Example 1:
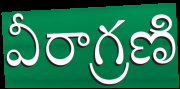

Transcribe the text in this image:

వీరాగ్రణి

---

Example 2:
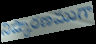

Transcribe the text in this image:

నిష్కారణముగా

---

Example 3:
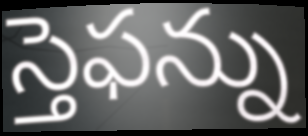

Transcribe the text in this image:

స్తెఫన్ను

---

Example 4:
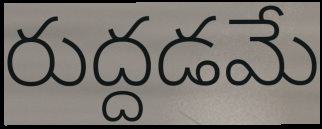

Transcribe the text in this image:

రుద్దడమే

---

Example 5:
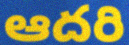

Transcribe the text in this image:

ఆదరి